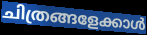
ചിത്രങ്ങളേക്കാൾ